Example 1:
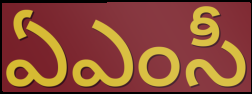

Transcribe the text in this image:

ఏఎంసీ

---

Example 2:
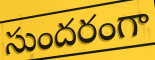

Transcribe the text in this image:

సుందరంగా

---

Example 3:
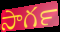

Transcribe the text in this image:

సాగర్‍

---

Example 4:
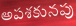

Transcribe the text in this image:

అపశకునపు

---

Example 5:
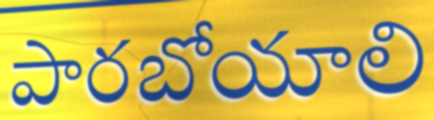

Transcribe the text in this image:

పారబోయాలి